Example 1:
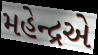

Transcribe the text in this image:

મહેન્દ્રએ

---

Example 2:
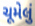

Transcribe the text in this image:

ચૂમેલું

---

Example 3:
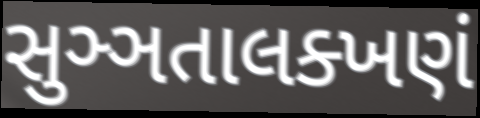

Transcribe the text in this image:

સુઞ્ઞતાલક્ખણં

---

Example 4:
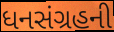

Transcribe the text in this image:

ધનસંગ્રહની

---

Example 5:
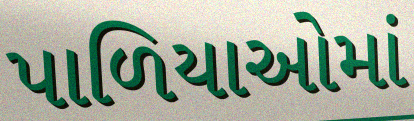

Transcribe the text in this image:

પાળિયાઓમાં